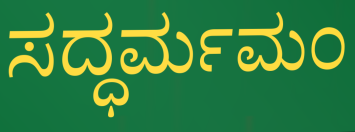
ಸದ್ಧರ್ಮಮಂ